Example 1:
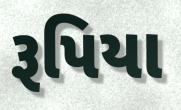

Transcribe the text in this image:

રૂપિયા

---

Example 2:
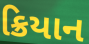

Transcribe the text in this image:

ક્રિયાન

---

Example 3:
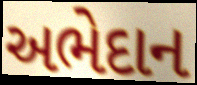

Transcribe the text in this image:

અભેદાન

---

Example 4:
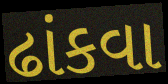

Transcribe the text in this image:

ઢાંકવા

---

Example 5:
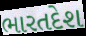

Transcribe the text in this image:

ભારતદેશ